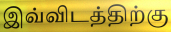
இவ்விடத்திற்கு